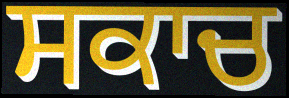
ਸਕਾਚ